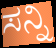
ಸನ್ನಿ